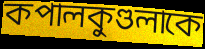
কপালকুণ্ডলাকে